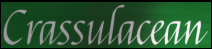
Crassulacean